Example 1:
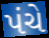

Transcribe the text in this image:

પંચે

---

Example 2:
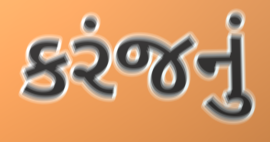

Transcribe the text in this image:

કરંજનું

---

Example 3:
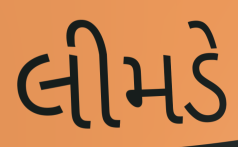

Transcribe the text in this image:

લીમડે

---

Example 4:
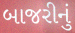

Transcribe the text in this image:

બાજરીનું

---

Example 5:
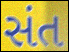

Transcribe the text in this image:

સંત